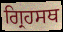
ਗ੍ਰਿਹਸਥ